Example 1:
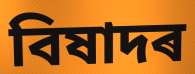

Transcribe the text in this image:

বিষাদৰ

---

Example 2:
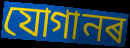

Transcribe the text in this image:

যোগানৰ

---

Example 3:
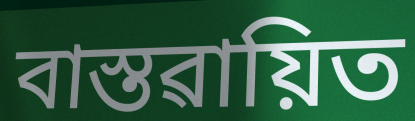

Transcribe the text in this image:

বাস্তৱায়িত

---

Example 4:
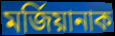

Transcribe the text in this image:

মৰ্জিয়ানাক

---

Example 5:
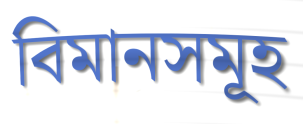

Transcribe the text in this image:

বিমানসমূহ